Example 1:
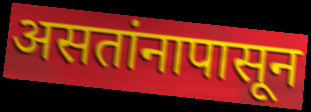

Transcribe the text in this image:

असतांनापासून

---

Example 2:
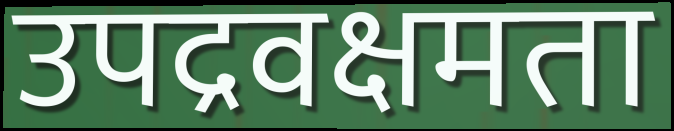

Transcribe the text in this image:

उपद्रवक्षमता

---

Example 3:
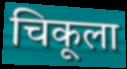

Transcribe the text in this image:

चिकूला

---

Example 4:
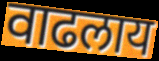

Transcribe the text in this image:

वाढलाय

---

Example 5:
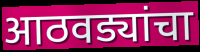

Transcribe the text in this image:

आठवड्यांचा